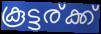
കൂട്ടര്ക്ക്